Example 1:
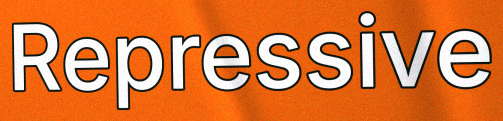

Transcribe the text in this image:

Repressive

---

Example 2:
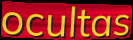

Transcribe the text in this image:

ocultas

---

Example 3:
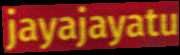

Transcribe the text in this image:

jayajayatu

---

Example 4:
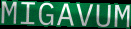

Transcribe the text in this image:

MIGAVUM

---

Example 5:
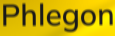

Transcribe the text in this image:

Phlegon